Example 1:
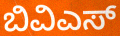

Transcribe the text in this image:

ಬಿವಿಎಸ್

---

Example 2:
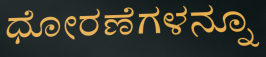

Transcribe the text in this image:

ಧೋರಣೆಗಳನ್ನೂ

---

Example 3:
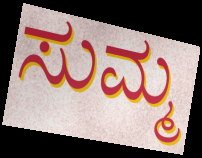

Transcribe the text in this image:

ಸುಮ್ಮ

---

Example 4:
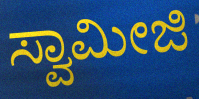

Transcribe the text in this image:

ಸ್ವಾಮೀಜಿ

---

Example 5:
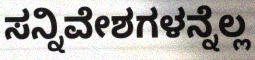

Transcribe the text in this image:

ಸನ್ನಿವೇಶಗಳನ್ನೆಲ್ಲ